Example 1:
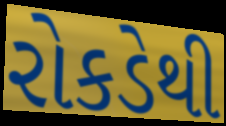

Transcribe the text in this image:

રોકડેથી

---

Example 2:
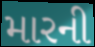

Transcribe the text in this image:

મારની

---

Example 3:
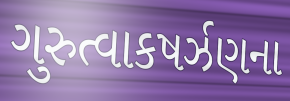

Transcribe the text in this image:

ગુરુત્વાકષર્ઝણના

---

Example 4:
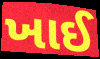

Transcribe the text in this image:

ખાઈ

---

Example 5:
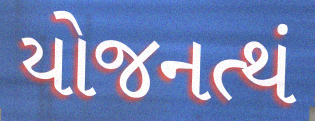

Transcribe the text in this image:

યોજનત્થં